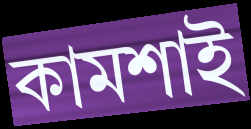
কামশাই